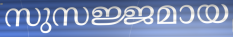
സുസജ്ജമായ